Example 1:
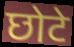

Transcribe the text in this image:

छोटे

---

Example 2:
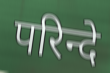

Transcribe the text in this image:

परिन्दे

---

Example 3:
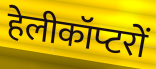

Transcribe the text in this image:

हेलीकॉप्‍टरों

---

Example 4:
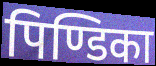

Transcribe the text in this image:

पिण्डिका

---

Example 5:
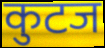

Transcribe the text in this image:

कुटज